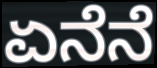
ಏನೆನೆ